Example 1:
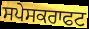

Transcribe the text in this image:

ਸਪੇਸਕਰਾਫਟ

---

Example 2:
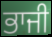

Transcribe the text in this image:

ਭਾਜੀ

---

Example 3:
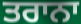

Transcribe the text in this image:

ਤਰਾਨਾ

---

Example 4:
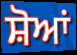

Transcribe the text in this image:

ਸ਼ੋਆਂ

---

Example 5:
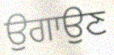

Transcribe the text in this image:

ਉਗਾਉਣ